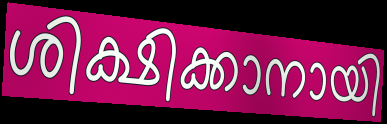
ശിക്ഷിക്കാനായി